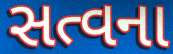
સત્વના